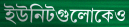
ইউনিটগুলোকেও